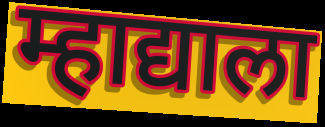
म्हाद्याला